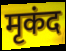
मृकंद